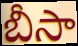
బీసా